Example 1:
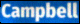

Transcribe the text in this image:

Campbell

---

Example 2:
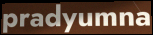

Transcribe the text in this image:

pradyumna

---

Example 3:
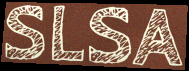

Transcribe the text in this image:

SLSA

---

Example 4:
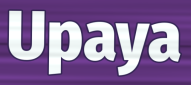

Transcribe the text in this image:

Upaya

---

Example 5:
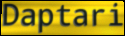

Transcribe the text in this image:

Daptari